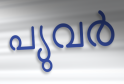
പ്യുവർ